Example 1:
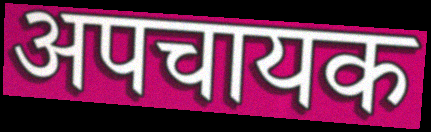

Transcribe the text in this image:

अपचायक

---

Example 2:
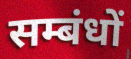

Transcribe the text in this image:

सम्बंधों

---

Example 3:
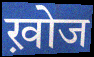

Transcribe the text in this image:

ख़ोज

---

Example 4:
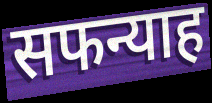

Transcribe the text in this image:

सफन्याह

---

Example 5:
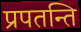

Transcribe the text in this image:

प्रपतन्ति